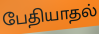
பேதியாதல்